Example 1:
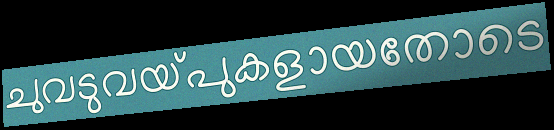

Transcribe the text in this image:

ചുവടുവയ്‌പുകളായതോടെ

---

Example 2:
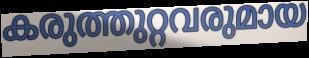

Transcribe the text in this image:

കരുത്തുറ്റവരുമായ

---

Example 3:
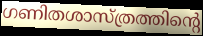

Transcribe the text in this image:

ഗണിതശാസ്ത്രത്തിന്റെ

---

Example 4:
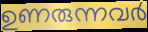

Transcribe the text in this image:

ഉണരുന്നവർ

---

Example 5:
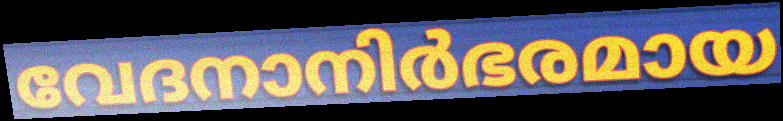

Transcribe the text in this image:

വേദനാനിർഭരമായ